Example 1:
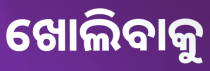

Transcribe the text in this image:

ଖୋଲିବାକୁ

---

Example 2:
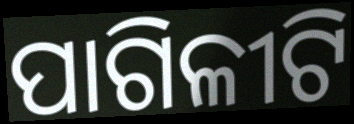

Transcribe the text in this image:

ପାଗିଳୀଟି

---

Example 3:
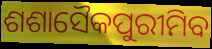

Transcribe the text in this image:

ଶଶାସୈକପୁରୀମିବ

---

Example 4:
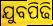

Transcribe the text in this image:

ଯୁବପିଢି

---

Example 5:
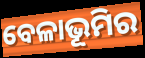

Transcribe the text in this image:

ବେଳାଭୂମିର